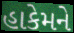
હાકેમને